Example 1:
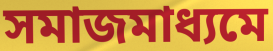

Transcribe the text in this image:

সমাজমাধ্যমে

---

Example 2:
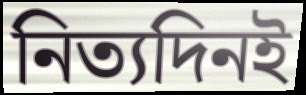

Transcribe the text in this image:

নিত্যদিনই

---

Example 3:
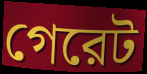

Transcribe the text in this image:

গেরেট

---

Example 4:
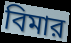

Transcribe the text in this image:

বিমার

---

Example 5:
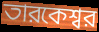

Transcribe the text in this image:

তারকেশ্বর